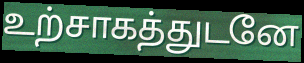
உற்சாகத்துடனே